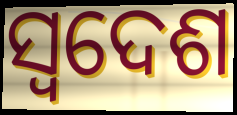
ସ୍ୱଦେଶ